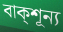
বাক্শূন্য